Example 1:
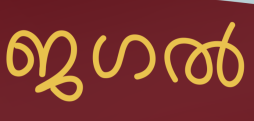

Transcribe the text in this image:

ജഗൽ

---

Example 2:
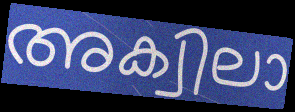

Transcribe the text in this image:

അക്വിലാ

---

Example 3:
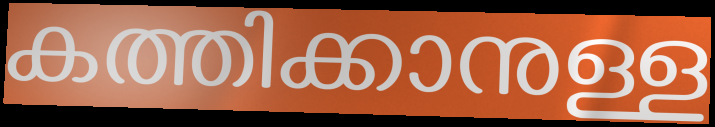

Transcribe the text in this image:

കത്തിക്കാനുള്ള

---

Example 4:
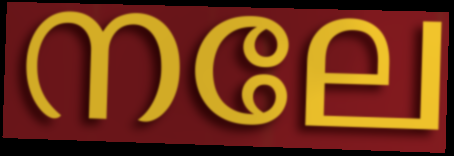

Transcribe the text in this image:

നലേ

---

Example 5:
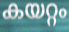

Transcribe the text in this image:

കയറ്റം